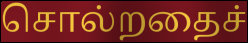
சொல்றதைச்